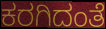
ಕರಗಿದಂತೆ